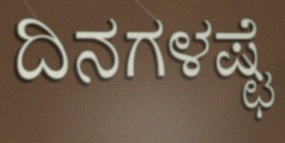
ದಿನಗಳಷ್ಟೆ